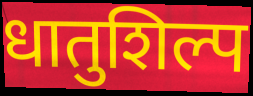
धातुशिल्प